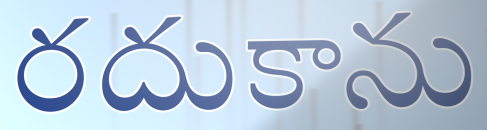
రదుకాను